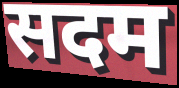
सदम